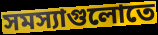
সমস্যাগুলোতে